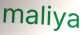
maliya